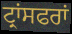
ਟ੍ਰਾਂਸਫਰਾਂ